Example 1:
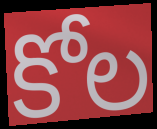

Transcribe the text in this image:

కోల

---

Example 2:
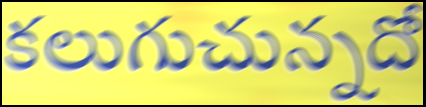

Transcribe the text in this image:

కలుగుచున్నదో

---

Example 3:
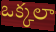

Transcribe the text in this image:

ఒక్కలా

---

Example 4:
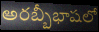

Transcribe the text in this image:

అరబ్బీభాషలో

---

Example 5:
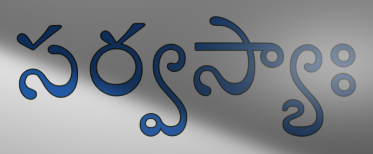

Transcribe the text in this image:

సర్వస్యాః